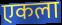
एकला